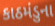
કાઠમંડુના